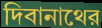
দিবানাথের